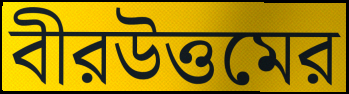
বীরউত্তমের